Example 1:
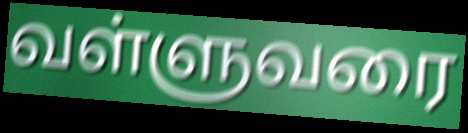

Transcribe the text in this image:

வள்ளுவரை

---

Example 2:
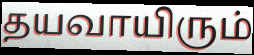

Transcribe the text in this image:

தயவாயிரும்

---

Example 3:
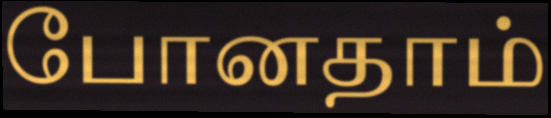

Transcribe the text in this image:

போனதாம்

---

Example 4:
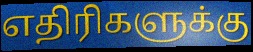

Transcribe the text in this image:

எதிரிகளுக்கு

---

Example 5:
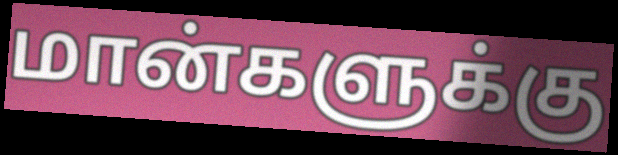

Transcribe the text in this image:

மான்களுக்கு